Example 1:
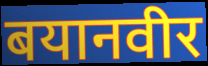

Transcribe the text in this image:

बयानवीर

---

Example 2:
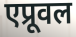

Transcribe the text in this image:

एप्रूवल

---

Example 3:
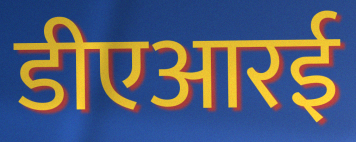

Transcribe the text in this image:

डीएआरई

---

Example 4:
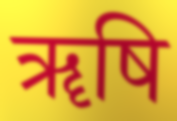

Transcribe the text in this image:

ॠषि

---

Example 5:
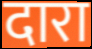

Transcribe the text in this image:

दारा